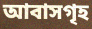
আবাসগৃহ